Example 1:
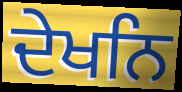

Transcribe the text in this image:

ਦੇਖਨਿ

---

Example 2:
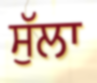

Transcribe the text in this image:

ਸੁੱਲਾ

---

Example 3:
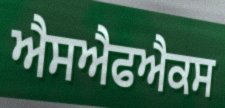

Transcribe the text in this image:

ਐਸਐਫਐਕਸ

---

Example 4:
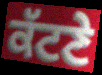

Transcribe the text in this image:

ਕੱਟਣੇ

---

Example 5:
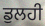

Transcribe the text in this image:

ਡੁਲਹੀ